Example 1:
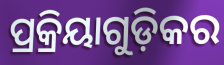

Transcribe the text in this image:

ପ୍ରକ୍ରିୟାଗୁଡ଼ିକର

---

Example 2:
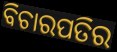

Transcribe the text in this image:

ବିଚାରପତିର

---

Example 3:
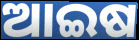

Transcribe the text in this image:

ଆଇଷ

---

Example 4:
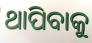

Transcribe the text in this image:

ଥାପିବାକୁ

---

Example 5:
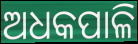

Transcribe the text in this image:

ଅଧକପାଳି